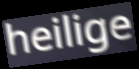
heilige